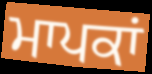
ਮਾਪਕਾਂ